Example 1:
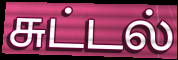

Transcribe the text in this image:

சுட்டல்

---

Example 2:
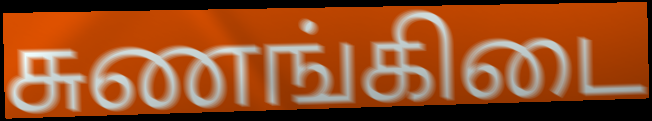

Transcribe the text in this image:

சுணங்கிடை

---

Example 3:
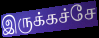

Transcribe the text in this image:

இருக்கச்சே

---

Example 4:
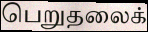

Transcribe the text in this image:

பெறுதலைக்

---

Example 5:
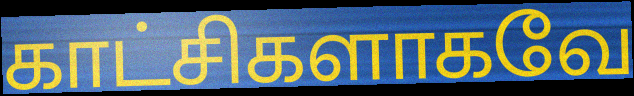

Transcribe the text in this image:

காட்சிகளாகவே